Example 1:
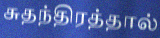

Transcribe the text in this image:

சுதந்திரத்தால்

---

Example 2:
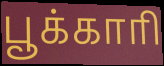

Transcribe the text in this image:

பூக்காரி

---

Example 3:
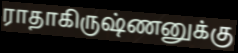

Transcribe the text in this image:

ராதாகிருஷ்ணனுக்கு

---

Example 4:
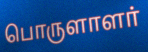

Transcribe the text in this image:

பொருளாளர்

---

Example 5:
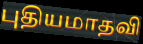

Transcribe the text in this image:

புதியமாதவி